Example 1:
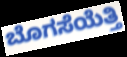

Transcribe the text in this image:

ಬೊಗಸೆಯೆತ್ತಿ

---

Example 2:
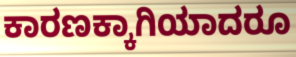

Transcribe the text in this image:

ಕಾರಣಕ್ಕಾಗಿಯಾದರೂ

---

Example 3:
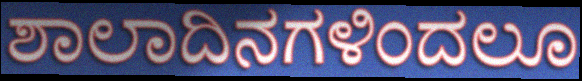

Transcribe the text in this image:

ಶಾಲಾದಿನಗಳಿಂದಲೂ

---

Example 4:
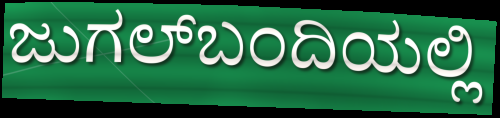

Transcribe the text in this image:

ಜುಗಲ್‌ಬಂದಿಯಲ್ಲಿ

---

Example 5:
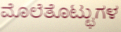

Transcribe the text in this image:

ಮೊಲೆತೊಟ್ಟುಗಳ